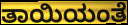
ತಾಯಿಯಂತೆ